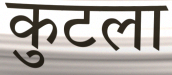
कुटला